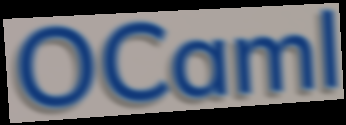
OCaml